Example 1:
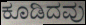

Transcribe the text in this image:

ಕೂಡಿದವು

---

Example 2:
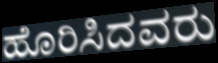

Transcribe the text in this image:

ಹೊರಿಸಿದವರು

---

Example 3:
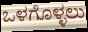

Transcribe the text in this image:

ಒಳಗೊಳ್ಳಲು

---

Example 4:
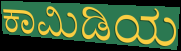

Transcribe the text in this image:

ಕಾಮಿಡಿಯ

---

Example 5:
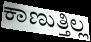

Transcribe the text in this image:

ಕಾಣುತ್ತಿಲ್ಲ